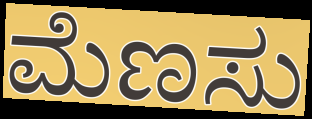
ಮೆಣಸು